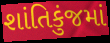
શાંતિકુંજમાં